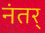
नंतर्